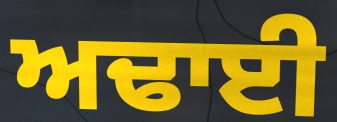
ਅਢਾਈ